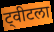
ट्वीटला